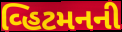
વ્હિટમનની